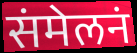
संमेलनं